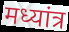
मध्यांत्र